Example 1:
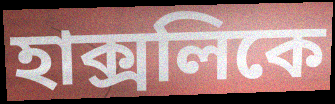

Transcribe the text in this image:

হাক্সলিকে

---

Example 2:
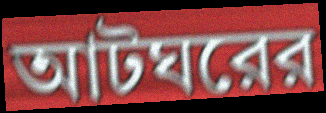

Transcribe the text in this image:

আটঘরের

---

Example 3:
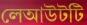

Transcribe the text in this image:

লেআউটটি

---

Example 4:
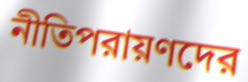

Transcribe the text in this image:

নীতিপরায়ণদের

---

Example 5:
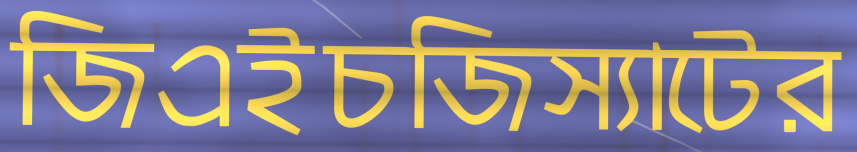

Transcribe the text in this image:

জিএইচজিস্যাটের